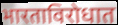
भारताविरोधात